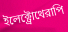
ইলেক্ট্রোথেরাপি